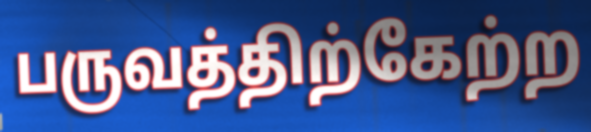
பருவத்திற்கேற்ற